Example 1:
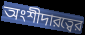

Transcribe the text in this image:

অংশীদারত্বের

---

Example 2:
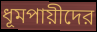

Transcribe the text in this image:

ধূমপায়ীদের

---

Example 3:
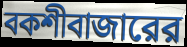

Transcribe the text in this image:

বকশীবাজারের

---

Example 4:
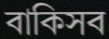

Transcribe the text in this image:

বাকিসব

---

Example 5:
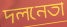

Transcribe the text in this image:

দলনেতা